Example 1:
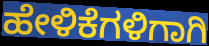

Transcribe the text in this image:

ಹೇಳಿಕೆಗಳಿಗಾಗಿ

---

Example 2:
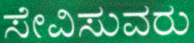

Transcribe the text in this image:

ಸೇವಿಸುವರು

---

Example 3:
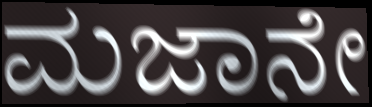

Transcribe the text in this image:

ಮಜಾನೇ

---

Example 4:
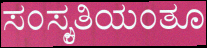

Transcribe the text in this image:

ಸಂಸ್ಕೃತಿಯಂತೂ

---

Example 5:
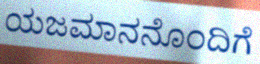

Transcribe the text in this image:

ಯಜಮಾನನೊಂದಿಗೆ